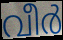
വീർ